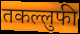
तकल्लुफी